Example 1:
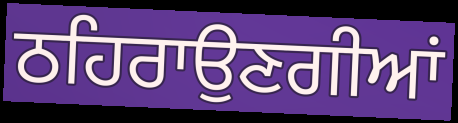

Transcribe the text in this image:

ਠਹਿਰਾਉਣਗੀਆਂ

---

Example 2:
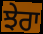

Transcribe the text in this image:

ਝੇਰਾ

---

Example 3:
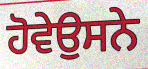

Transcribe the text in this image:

ਹੋਵੇਉਸਨੇ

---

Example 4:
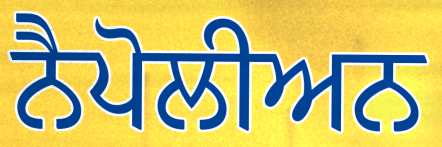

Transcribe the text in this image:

ਨੈਪੋਲੀਅਨ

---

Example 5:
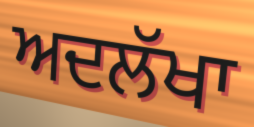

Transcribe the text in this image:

ਅਦਲੱਖਾ